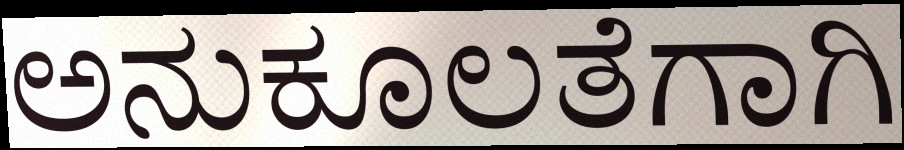
ಅನುಕೂಲತೆಗಾಗಿ